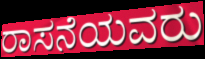
ರಾಸನೆಯವರು